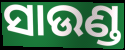
ସାଉଣ୍ଡ